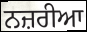
ਨਜ਼ਰੀਆ